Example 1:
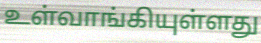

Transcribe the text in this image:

உள்வாங்கியுள்ளது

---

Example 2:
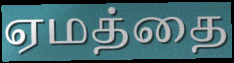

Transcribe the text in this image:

ஏமத்தை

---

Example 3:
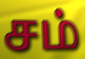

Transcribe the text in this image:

சம்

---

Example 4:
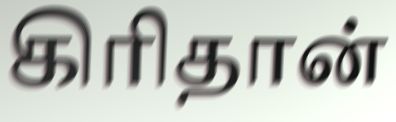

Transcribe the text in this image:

கிரிதான்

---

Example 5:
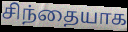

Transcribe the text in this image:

சிந்தையாக